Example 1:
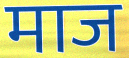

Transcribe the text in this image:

माज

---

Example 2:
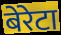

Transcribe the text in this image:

बेरेटा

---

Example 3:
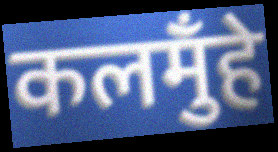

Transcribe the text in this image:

कलमुँहे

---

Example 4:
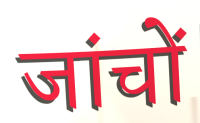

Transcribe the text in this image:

जांचों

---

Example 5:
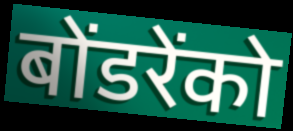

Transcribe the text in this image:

बोंडरेंको